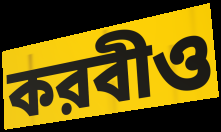
করবীও